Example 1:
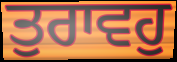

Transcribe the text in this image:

ਤੁਰਾਵਹੁ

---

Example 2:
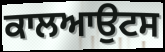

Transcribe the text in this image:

ਕਾਲਆਉਟਸ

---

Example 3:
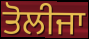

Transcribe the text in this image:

ਤੋਲੀਜਾ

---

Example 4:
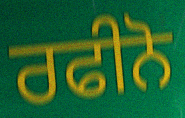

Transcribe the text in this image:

ਰਫੀਨੋ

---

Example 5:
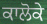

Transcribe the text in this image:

ਕਾਲੋਕੇ